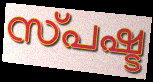
സ്‌പഷ്ട